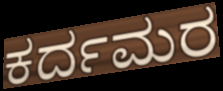
ಕರ್ದಮರ